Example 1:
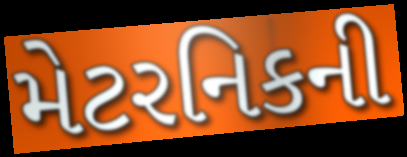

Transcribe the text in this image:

મેટરનિકની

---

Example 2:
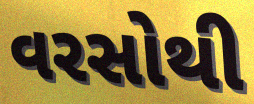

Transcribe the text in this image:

વરસોથી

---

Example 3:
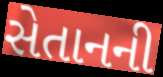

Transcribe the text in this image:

સેતાનની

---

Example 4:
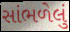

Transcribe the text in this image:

સાંભળેલું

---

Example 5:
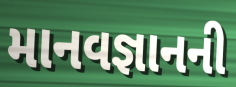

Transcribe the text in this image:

માનવજ્ઞાનની